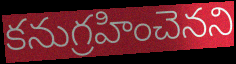
కనుగ్రహించెనని